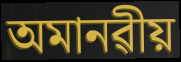
অমানৱীয়